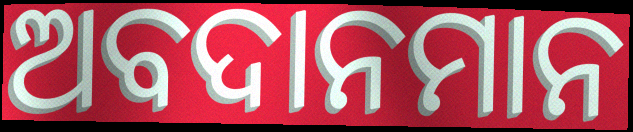
ଅବଦାନମାନ